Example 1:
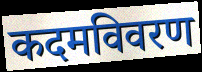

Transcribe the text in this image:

कदमविवरण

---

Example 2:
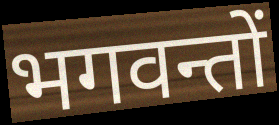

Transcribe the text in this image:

भगवन्तों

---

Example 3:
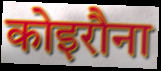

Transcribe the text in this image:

कोइरौना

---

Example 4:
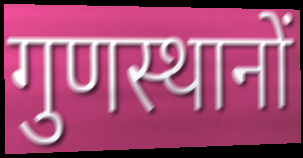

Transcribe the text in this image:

गुणस्थानों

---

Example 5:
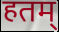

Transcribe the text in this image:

हतम्